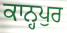
ਕਾਨ੍ਹਪੁਰ